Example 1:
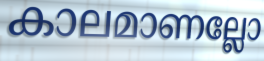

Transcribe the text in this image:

കാലമാണല്ലോ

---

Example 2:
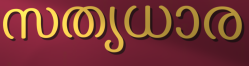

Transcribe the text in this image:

സത്യധാര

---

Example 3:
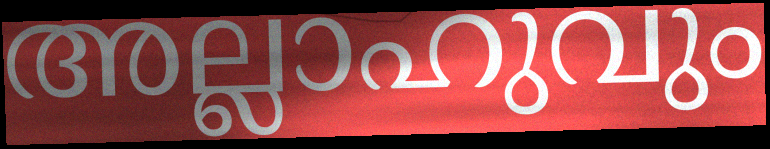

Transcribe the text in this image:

അല്ലാഹുവും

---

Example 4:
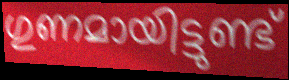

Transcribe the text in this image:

ഗുണമായിട്ടുണ്ട്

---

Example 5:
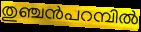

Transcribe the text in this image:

തുഞ്ചൻപറമ്പിൽ